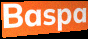
Baspa